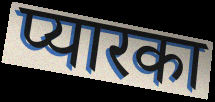
प्यारका